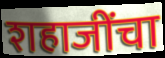
शहाजींचा